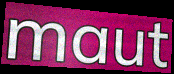
maut